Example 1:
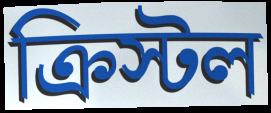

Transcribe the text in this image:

ক্রিস্টল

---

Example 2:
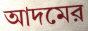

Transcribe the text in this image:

আদমের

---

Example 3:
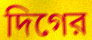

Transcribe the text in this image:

দিগের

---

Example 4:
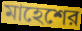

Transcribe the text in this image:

মাহেশের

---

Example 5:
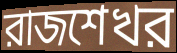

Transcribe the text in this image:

রাজশেখর